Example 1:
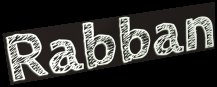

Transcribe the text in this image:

Rabban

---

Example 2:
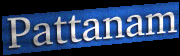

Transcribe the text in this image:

Pattanam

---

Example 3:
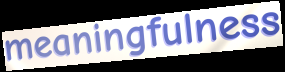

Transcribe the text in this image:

meaningfulness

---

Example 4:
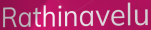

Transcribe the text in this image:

Rathinavelu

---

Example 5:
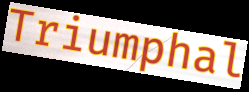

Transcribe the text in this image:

Triumphal